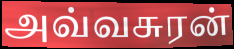
அவ்வசுரன்